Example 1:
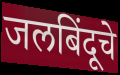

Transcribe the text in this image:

जलबिंदूचे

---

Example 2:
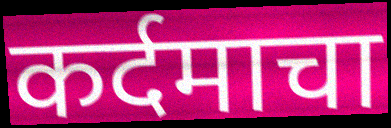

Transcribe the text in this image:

कर्दमाचा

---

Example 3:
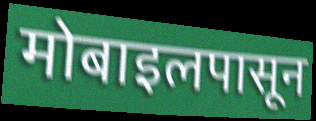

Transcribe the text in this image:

मोबाइलपासून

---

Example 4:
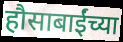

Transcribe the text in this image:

हौसाबाईंच्या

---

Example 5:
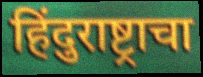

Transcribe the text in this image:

हिंदुराष्ट्राचा